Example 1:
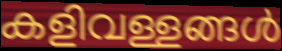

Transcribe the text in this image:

കളിവള്ളങ്ങൾ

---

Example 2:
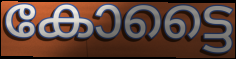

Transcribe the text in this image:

കോട്ടൈ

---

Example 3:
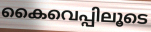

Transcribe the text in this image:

കൈവെപ്പിലൂടെ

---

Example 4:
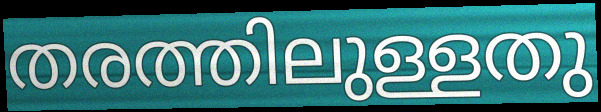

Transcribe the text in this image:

തരത്തിലുള്ളതു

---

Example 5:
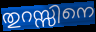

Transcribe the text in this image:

തുറസ്സിനെ